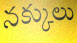
నక్కులు